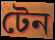
টেন